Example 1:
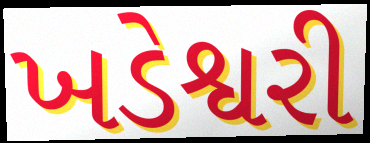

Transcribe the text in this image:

ખડેશ્વરી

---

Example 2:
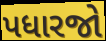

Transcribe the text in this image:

પધારજો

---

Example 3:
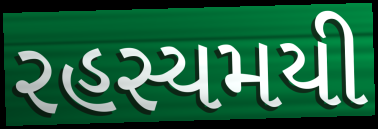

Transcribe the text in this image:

રહસ્યમયી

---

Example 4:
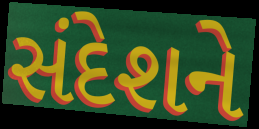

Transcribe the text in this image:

સંદેશને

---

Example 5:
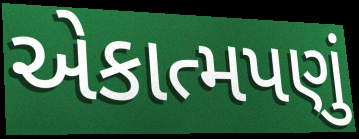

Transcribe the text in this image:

એકાત્મપણું